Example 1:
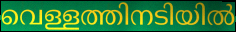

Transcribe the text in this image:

വെള്ളത്തിനടിയിൽ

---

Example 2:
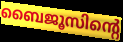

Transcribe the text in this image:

ബൈജൂസിന്റെ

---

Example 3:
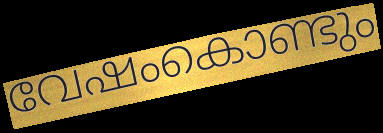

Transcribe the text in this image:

വേഷംകൊണ്ടും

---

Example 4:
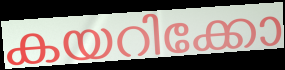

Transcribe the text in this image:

കയറിക്കോ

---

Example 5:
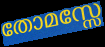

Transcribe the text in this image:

തോമസ്സേ